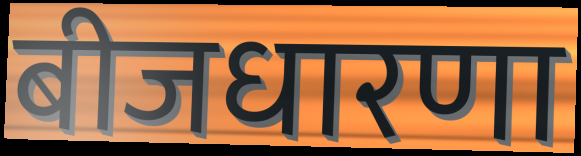
बीजधारणा